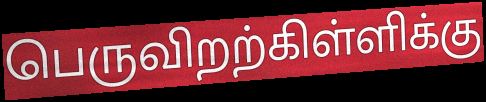
பெருவிறற்கிள்ளிக்கு